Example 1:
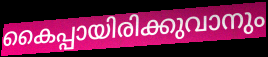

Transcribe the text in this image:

കൈപ്പായിരിക്കുവാനും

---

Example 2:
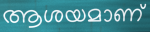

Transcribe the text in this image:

ആശയമാണ്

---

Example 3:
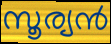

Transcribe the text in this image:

സൂര്യൻ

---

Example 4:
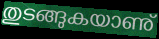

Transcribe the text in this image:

തുടങ്ങുകയാണു്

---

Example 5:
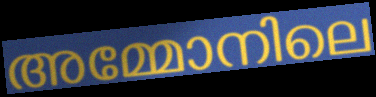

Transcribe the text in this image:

അമ്മോനിലെ